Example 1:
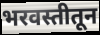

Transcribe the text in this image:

भरवस्तीतून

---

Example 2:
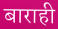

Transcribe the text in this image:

बाराही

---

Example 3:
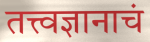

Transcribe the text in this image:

तत्त्वज्ञानाचं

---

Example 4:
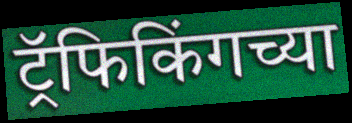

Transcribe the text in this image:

ट्रॅफिकिंगच्या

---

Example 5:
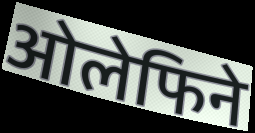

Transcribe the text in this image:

ओलेफिने